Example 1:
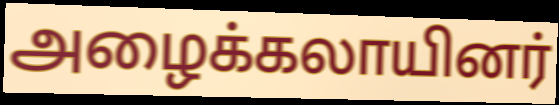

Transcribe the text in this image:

அழைக்கலாயினர்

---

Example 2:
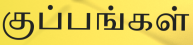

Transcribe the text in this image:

குப்பங்கள்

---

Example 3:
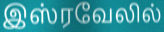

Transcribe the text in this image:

இஸ்ரவேலில்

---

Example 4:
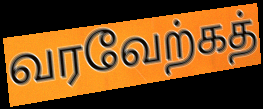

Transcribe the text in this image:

வரவேற்கத்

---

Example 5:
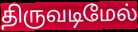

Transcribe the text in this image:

திருவடிமேல்